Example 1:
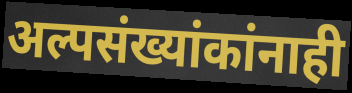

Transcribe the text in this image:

अल्पसंख्यांकांनाही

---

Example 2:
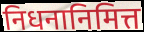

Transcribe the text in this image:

निधनानिमित्त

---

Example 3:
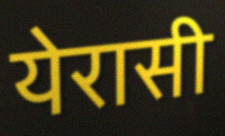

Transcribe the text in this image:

येरासी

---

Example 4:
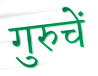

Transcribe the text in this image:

गुरुचें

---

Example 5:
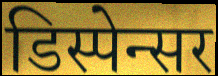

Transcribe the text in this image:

डिस्पेन्सर